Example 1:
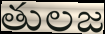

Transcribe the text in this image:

తులజ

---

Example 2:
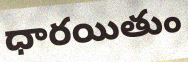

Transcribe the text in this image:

ధారయితుం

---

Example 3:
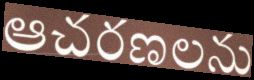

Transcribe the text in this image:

ఆచరణలను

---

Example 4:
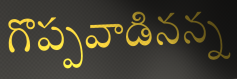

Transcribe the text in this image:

గొప్పవాడినన్న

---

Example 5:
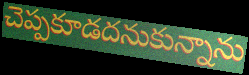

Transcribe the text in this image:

చెప్పకూడదనుకున్నాను